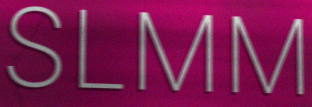
SLMM